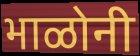
भाळोनी